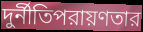
দুর্নীতিপরায়ণতার